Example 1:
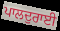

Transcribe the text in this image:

ਪਾਲਦੁਰਾਈ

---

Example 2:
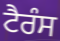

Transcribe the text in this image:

ਟੈਰੰਸ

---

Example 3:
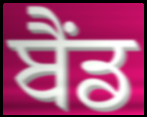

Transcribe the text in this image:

ਬੈਂਡ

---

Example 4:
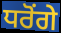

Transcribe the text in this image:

ਧਰੋਂਗੇ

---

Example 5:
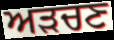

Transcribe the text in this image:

ਅੜਚਣ